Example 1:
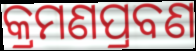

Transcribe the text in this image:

କ୍ରମଣପ୍ରବଣ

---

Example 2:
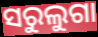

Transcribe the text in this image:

ସରୁଲୁଗା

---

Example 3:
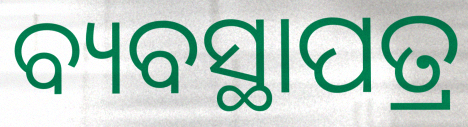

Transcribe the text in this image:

ବ୍ୟବସ୍ଥାପତ୍ର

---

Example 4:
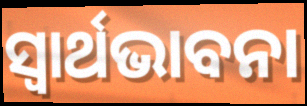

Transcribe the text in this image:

ସ୍ଵାର୍ଥଭାବନା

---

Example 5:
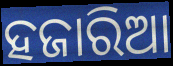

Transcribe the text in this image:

ହଜାରିଆ